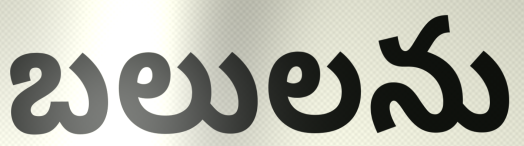
బలులను